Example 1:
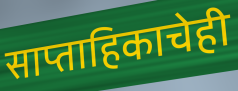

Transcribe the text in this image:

साप्ताहिकाचेही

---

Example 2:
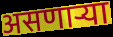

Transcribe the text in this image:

असणाऱ्या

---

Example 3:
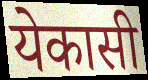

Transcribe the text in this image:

येकासी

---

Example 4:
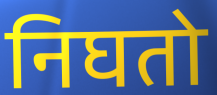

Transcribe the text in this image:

निघतो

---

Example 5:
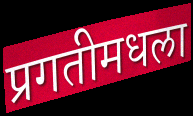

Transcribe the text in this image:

प्रगतीमधला